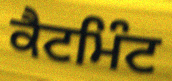
ਕੈਟਮਿੰਟ